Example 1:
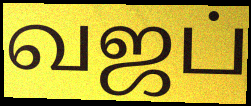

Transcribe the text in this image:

வஜப்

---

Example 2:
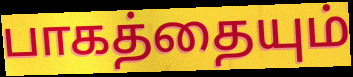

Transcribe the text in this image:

பாகத்தையும்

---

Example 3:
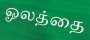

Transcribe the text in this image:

ஓலத்தை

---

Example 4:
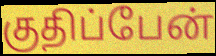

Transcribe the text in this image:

குதிப்பேன்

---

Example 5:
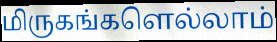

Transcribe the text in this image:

மிருகங்களெல்லாம்